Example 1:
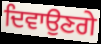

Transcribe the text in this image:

ਦਿਵਾਉਣਗੇ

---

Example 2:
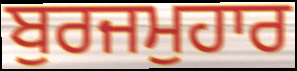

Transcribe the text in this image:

ਬੁਰਜਮੁਹਾਰ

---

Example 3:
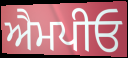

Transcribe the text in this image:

ਐਮਪੀਓ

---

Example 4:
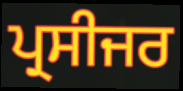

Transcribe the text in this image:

ਪ੍ਰਸੀਜਰ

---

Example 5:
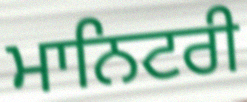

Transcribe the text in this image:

ਮਾਨਿਟਰੀ